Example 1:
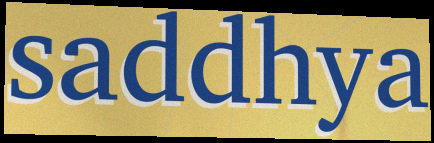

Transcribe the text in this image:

saddhya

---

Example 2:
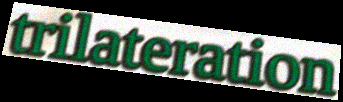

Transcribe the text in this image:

trilateration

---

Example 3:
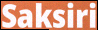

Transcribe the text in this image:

Saksiri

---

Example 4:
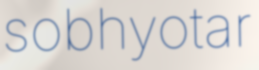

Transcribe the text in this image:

sobhyotar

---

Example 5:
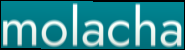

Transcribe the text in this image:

molacha